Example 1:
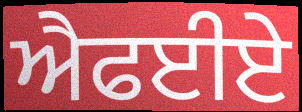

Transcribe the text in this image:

ਐਫਈਏ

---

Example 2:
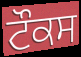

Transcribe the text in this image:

ਟੌਕਸ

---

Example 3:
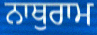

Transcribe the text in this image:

ਨਾਥੁਰਾਮ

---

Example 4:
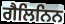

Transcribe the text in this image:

ਗੈਲਿਨਿਨ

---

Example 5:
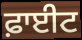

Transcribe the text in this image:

ਫ਼ਾਈਟ